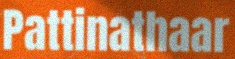
Pattinathaar